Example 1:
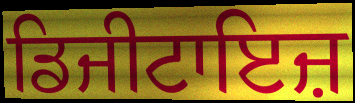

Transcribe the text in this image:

ਡਿਜੀਟਾਇਜ਼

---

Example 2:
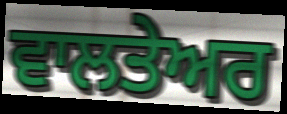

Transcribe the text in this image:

ਵਾਲਤੇਅਰ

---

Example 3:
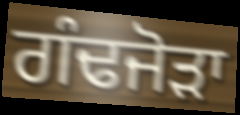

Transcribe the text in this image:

ਗੰਢਜੋੜਾ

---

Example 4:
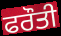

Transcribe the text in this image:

ਫਰੌਤੀ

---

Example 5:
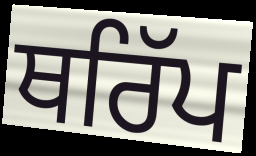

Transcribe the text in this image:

ਥਰਿੱਪ